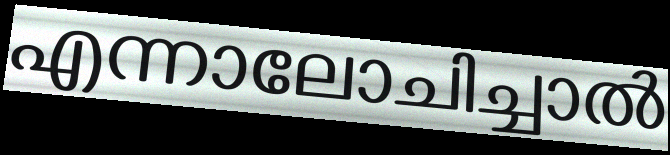
എന്നാലോചിച്ചാൽ